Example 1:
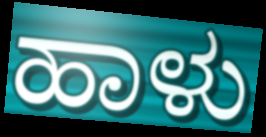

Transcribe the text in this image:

ಹಾಳು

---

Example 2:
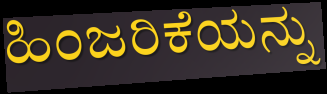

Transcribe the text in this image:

ಹಿಂಜರಿಕೆಯನ್ನು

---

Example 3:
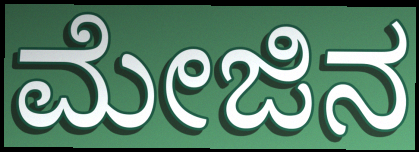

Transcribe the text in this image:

ಮೇಜಿನ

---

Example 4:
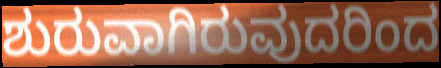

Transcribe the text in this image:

ಶುರುವಾಗಿರುವುದರಿಂದ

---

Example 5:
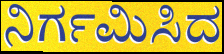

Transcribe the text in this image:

ನಿರ್ಗಮಿಸಿದ